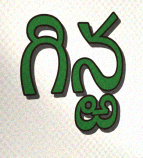
గిన్ఱ